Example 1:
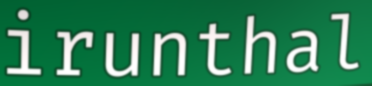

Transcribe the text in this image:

irunthal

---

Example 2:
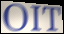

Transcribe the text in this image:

OIT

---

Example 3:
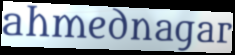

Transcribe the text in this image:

ahmednagar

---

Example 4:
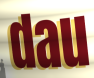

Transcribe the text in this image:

dau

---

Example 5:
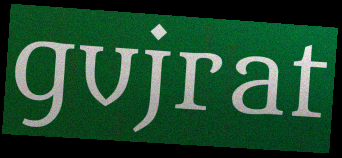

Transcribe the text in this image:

gujrat